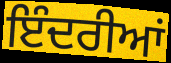
ਇੰਦਰੀਆਂ